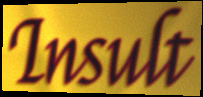
Insult